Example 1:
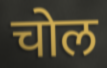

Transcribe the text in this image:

चोल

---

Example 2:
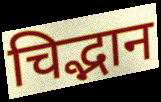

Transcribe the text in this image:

चिद्भान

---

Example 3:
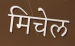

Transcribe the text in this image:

मिचेल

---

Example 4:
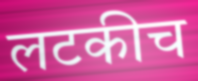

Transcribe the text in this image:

लटकीच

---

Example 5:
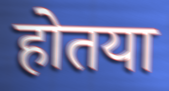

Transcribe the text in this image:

होतया